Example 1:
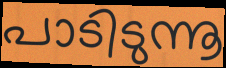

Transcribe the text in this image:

പാടിടുന്നൂ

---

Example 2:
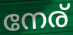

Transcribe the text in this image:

നേര്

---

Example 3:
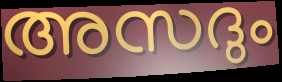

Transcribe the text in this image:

അസദും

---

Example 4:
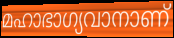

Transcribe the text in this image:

മഹാഭാഗ്യവാനാണ്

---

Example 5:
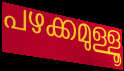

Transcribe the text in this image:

പഴക്കമുള്ളൂ